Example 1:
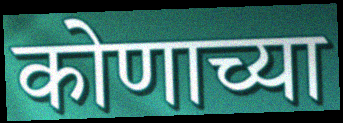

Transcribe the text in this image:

कोणाच्या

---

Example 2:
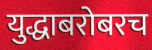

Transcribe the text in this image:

युद्धाबरोबरच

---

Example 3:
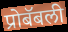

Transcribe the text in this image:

प्रोबॅबली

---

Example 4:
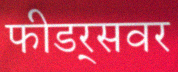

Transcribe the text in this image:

फीडर्सवर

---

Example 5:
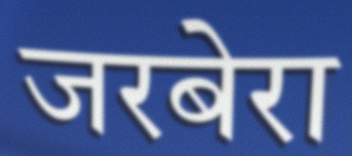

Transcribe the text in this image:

जरबेरा